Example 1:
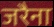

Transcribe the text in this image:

जरैना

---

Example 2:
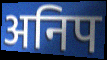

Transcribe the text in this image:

अनिप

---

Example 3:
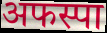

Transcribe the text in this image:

अफस्पा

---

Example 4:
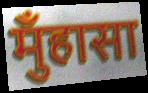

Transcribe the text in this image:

मुँहासा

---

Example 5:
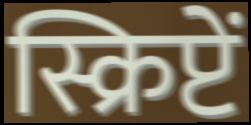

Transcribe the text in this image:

स्क्रिप्टें